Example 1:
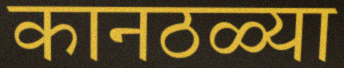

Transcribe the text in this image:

कानठळ्या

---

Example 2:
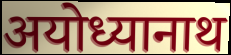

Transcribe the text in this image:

अयोध्यानाथ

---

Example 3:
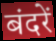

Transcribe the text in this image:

बंदरें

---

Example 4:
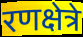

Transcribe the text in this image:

रणक्षेत्रे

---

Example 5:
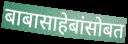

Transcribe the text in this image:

बाबासाहेबांसोबत